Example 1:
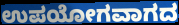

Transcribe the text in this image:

ಉಪಯೋಗವಾಗದ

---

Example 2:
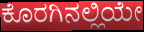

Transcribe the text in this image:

ಕೊರಗಿನಲ್ಲಿಯೇ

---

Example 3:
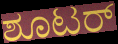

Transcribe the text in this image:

ಶೂಟರ್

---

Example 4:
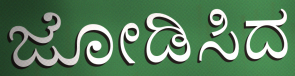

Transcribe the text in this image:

ಜೋಡಿಸಿದ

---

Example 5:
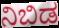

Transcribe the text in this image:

ನಿಬಿಡ